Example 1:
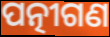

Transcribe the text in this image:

ପତ୍ନୀଗଣ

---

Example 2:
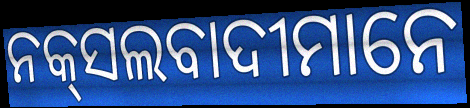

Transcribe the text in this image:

ନକ୍‌ସଲବାଦୀମାନେ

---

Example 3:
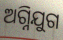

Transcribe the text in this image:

ଅଗ୍ନିଯୁଗ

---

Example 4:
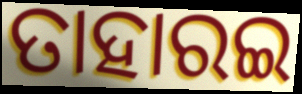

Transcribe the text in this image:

ତାହାରଇ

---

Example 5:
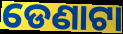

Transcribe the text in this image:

ଡେଣାଟା